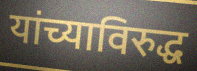
यांच्याविरुद्ध